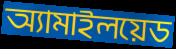
অ্যামাইলয়েড